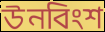
উনবিংশ